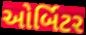
ઓર્બિટર